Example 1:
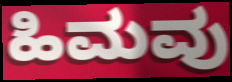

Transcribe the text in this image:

ಹಿಮವು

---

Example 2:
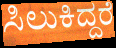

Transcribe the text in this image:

ಸಿಲುಕಿದ್ದರೆ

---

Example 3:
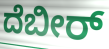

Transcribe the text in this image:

ದೆಬೀರ್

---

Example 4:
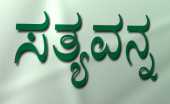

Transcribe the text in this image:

ಸತ್ಯವನ್ನ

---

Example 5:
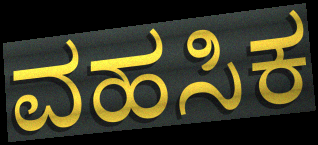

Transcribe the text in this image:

ವಹಸಿಕ